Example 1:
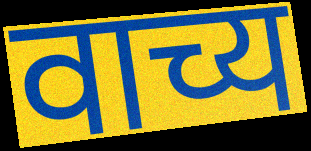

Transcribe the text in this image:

वाच्य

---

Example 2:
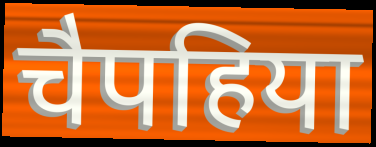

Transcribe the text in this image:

चैपहिया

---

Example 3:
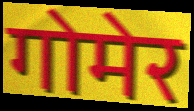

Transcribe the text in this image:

गोमेर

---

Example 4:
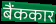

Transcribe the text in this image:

बैंककार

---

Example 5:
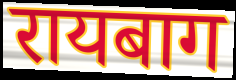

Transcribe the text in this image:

रायबाग